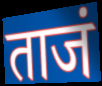
ताजं